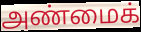
அண்மைக்